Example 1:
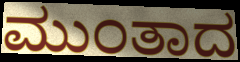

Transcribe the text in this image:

ಮುಂತಾದ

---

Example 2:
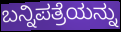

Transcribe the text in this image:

ಬನ್ನಿಪತ್ರೆಯನ್ನು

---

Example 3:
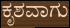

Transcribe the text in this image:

ಕೃಶವಾಗು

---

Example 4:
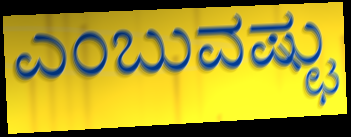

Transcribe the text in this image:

ಎಂಬುವಷ್ಟು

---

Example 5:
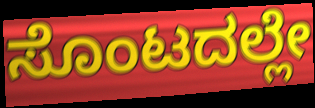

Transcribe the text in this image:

ಸೊಂಟದಲ್ಲೇ